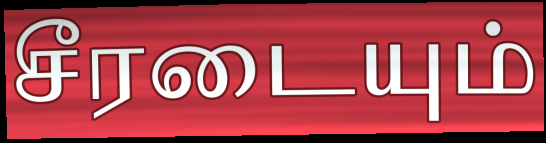
சீரடையும்